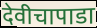
देवीचापाडा